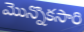
మొన్నొకసారి